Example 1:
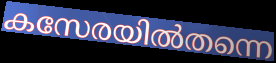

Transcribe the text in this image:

കസേരയിൽതന്നെ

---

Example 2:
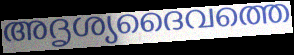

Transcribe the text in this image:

അദൃശ്യദൈവത്തെ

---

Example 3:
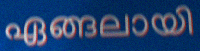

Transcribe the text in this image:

ഏങ്ങലായി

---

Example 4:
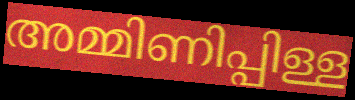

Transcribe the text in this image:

അമ്മിണിപ്പിള്ള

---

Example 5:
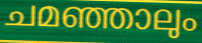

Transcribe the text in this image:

ചമഞ്ഞാലും